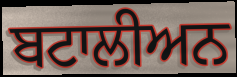
ਬਟਾਲੀਅਨ